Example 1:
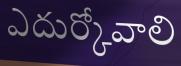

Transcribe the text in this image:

ఎదుర్కోవాలి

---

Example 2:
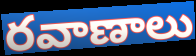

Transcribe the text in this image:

రవాణాలు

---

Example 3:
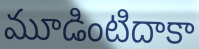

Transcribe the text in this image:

మూడింటిదాకా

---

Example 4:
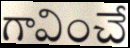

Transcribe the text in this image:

గావించే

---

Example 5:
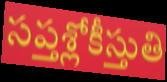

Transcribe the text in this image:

సప్తశ్లోకీస్తుతి